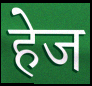
हेज